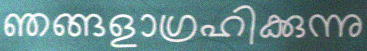
ഞങ്ങളാഗ്രഹിക്കുന്നു